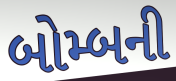
બોમ્બની